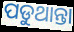
ପଡୁଥାନ୍ତା